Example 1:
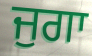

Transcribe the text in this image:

ਜੁਗਾ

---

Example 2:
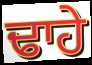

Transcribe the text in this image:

ਢਾਹੇ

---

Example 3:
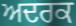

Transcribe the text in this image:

ਅਦਰਕ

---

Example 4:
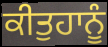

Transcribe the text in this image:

ਕੀਤੁਹਾਨੂੰ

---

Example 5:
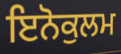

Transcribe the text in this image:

ਇਨੋਕੁਲਮ